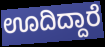
ಊದಿದ್ದಾರೆ